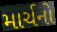
માર્ચનો